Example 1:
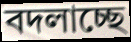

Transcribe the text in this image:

বদলাচ্ছে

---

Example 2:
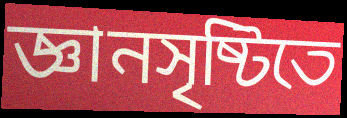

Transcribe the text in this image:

জ্ঞানসৃষ্টিতে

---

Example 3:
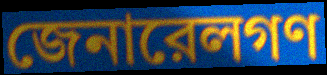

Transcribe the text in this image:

জেনারেলগণ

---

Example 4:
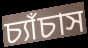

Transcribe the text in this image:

চ্যাঁচাস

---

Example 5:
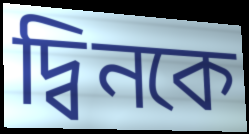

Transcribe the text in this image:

দ্বিনকে